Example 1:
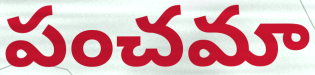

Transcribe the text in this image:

పంచమా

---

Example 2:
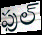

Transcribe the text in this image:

ఫుల్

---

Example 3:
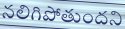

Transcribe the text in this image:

నలిగిపోతుందని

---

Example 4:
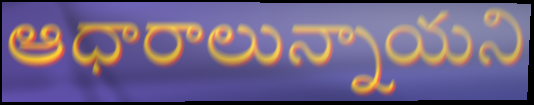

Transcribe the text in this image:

ఆధారాలున్నాయని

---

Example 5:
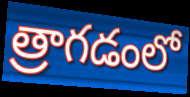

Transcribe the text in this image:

త్రాగడంలో